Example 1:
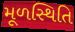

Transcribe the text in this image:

મૂળસ્થિતિ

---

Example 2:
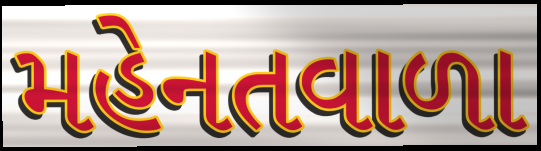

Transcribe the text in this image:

મહેનતવાળા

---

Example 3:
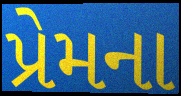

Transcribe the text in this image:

પ્રેમના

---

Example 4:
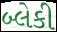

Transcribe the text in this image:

બ્લેકી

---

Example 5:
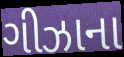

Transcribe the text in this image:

ગીઝાના